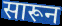
सारून